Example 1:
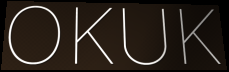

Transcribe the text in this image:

OKUK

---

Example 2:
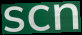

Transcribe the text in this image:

scn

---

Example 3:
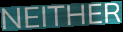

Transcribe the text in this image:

NEITHER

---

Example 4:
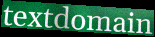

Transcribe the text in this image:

textdomain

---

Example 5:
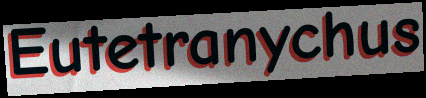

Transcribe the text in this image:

Eutetranychus